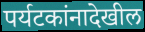
पर्यटकांनादेखील